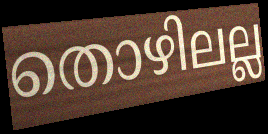
തൊഴിലല്ല